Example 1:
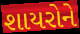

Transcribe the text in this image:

શાયરોને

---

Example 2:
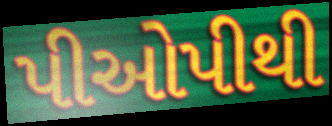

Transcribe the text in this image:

પીઓપીથી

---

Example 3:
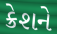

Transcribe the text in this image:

ક્રેશને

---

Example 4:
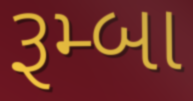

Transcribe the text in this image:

રૂમ્બા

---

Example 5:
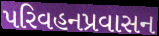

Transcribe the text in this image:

પરિવહનપ્રવાસન